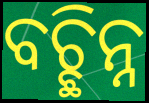
ବଚ୍ଛିନ୍ନ